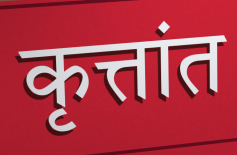
कृत्तांत